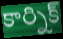
కార్నిక్